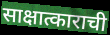
साक्षात्काराची